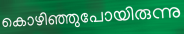
കൊഴിഞ്ഞുപോയിരുന്നു